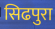
सिढपुरा